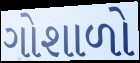
ગોશાળો